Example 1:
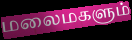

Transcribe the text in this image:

மலைமகளும்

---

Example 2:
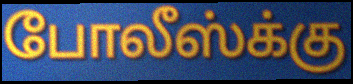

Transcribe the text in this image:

போலீஸ்க்கு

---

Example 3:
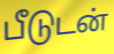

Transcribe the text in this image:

பீடுடன்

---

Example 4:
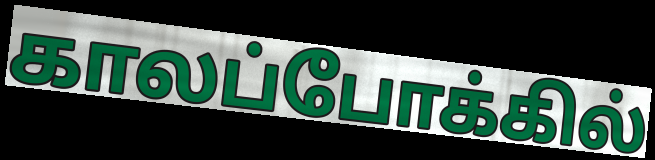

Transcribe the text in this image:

காலப்போக்கில்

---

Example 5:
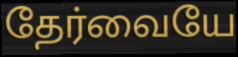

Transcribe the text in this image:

தேர்வையே